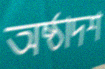
অষ্ঠাদশ